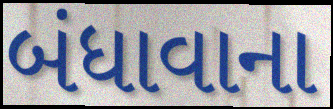
બંધાવાના